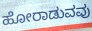
ಹೋರಾಡುವವು